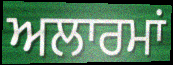
ਅਲਾਰਮਾਂ